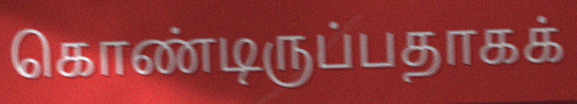
கொண்டிருப்பதாகக்